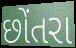
છોંતરા